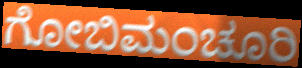
ಗೋಬಿಮಂಚೂರಿ